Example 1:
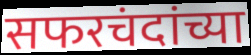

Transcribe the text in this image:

सफरचंदांच्या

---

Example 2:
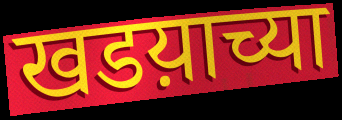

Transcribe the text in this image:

खडय़ाच्या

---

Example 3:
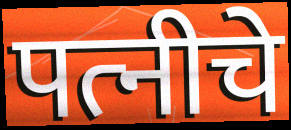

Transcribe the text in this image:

पत्‍नीचे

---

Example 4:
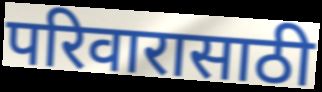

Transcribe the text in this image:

परिवारासाठी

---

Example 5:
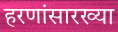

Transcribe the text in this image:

हरणांसारख्या